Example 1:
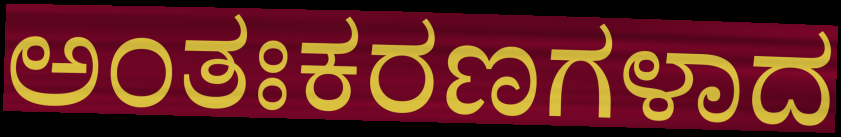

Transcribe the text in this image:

ಅಂತಃಕರಣಗಳಾದ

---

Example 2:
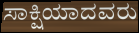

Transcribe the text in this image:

ಸಾಕ್ಷಿಯಾದವರು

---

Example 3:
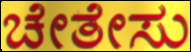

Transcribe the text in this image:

ಚೇತೇಸು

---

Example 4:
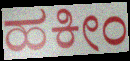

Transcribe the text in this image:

ಹಕೀಂ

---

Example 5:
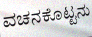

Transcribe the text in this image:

ವಚನಕೊಟ್ಟನು